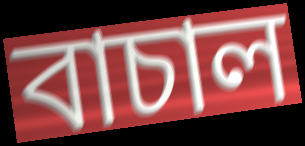
বাচাল